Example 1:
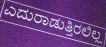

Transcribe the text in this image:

ಎದುರಾಡುತ್ತಿರಲಿಲ್ಲ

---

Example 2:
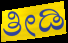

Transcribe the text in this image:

ತೀಡಿ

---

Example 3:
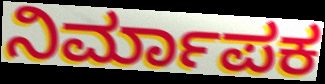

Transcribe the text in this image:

ನಿರ್ಮಾಪಕ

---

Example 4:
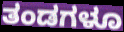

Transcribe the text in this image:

ತಂಡಗಳೂ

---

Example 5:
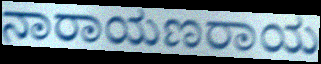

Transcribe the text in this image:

ನಾರಾಯಣರಾಯ